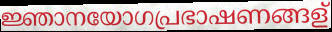
ജ്ഞാനയോഗപ്രഭാഷണങ്ങള്